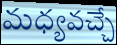
మధ్యవచ్చే